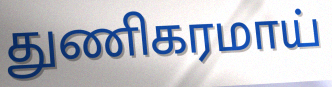
துணிகரமாய்